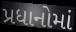
પ્રધાનોમાં